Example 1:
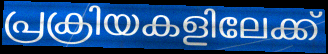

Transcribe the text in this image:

പ്രക്രിയകളിലേക്ക്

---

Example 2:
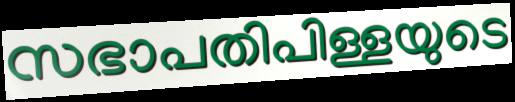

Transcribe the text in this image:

സഭാപതിപിള്ളയുടെ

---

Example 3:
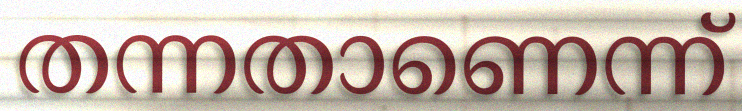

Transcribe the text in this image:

തന്നതാണെന്ന്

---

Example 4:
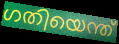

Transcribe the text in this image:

ഗതിയെന്ത്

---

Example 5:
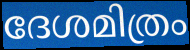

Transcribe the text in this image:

ദേശമിത്രം